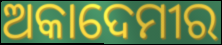
ଅକାଦେମୀର